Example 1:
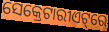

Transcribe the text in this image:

ସେକ୍ରେଟାରୀଏଟ୍‌ରେ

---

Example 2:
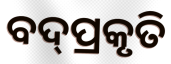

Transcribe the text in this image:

ବଦ୍‌ପ୍ରକୃତି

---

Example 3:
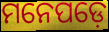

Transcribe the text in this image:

ମନେପଡ଼େ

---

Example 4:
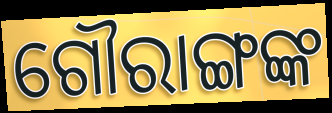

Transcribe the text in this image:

ଗୌରାଙ୍ଗଙ୍କ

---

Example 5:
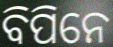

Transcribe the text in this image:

ବିପିନେ